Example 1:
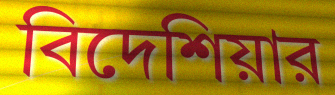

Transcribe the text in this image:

বিদেশিয়ার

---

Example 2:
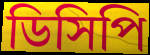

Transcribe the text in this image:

ডিসিপি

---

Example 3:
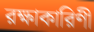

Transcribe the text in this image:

রক্ষাকারিণী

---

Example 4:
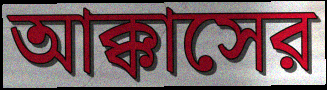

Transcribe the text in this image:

আক্কাসের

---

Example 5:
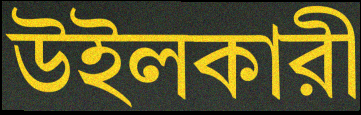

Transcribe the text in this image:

উইলকারী